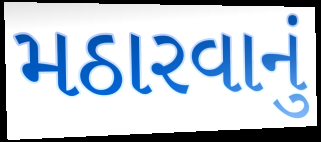
મઠારવાનું